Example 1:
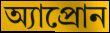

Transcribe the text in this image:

অ্যাপ্রোন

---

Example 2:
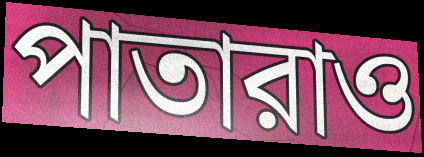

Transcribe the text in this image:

পাতারাও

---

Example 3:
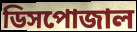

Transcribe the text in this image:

ডিসপোজাল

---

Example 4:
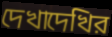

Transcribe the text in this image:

দেখাদেখির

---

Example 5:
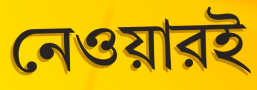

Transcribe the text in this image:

নেওয়ারই